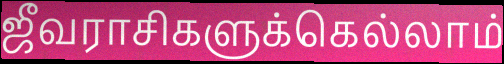
ஜீவராசிகளுக்கெல்லாம்